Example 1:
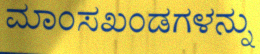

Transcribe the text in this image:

ಮಾಂಸಖಂಡಗಳನ್ನು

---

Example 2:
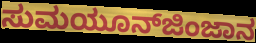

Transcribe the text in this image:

ಸುಮಯೂನ್‍ಜಿಂಜಾನ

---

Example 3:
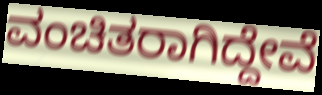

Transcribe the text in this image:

ವಂಚಿತರಾಗಿದ್ದೇವೆ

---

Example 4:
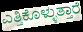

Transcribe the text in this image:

ಎತ್ತಿಕೊಳ್ಳುತ್ತಾರೆ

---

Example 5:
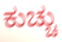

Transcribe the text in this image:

ಕುಚ್ಚು